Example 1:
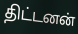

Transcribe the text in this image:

திட்டனன்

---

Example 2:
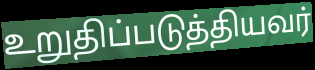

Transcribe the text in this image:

உறுதிப்படுத்தியவர்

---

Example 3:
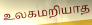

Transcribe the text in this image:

உலகமறியாத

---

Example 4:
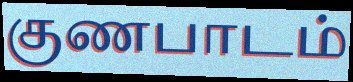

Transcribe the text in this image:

குணபாடம்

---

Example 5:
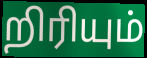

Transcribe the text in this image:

றிரியும்